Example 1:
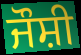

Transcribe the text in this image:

ਜੌਸ਼ੀ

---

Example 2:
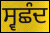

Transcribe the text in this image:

ਸ੍ਵਛੰਦ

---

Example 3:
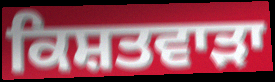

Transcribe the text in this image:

ਕਿਸ਼ਤਵਾੜਾ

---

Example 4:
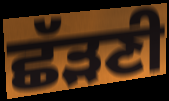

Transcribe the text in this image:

ਛੱੜਣੀ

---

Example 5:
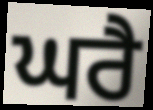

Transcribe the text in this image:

ਘਰੈ